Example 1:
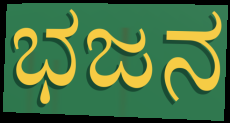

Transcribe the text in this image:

ಭಜನ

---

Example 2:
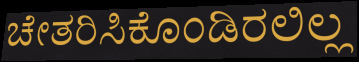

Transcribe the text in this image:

ಚೇತರಿಸಿಕೊಂಡಿರಲಿಲ್ಲ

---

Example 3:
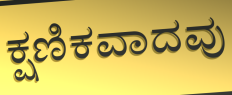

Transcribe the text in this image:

ಕ್ಷಣಿಕವಾದವು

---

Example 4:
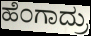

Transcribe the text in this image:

ಹೆಂಗಾದ್ರು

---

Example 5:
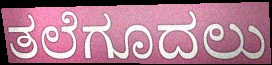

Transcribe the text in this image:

ತಲೆಗೂದಲು